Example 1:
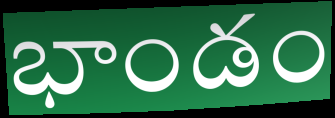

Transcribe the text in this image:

భాండం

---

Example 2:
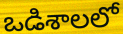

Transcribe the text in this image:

ఒడిశాలలో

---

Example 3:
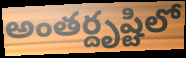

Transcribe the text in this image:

అంతర్దృష్టిలో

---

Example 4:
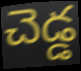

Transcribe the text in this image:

చెడ్డ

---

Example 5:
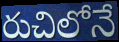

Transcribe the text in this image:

రుచిలోనే